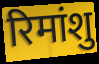
रिमांशु